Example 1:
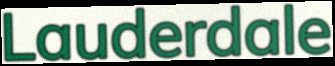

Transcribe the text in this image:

Lauderdale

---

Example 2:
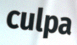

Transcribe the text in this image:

culpa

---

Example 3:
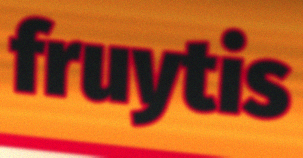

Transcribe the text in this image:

fruytis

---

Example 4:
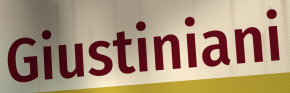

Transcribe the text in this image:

Giustiniani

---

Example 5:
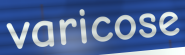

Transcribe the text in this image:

varicose